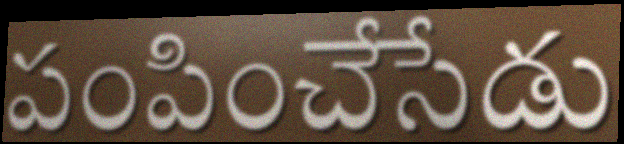
పంపించేసేడు